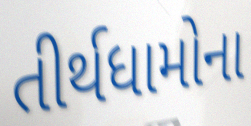
તીર્થધામોના